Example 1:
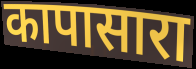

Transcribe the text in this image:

कापासारा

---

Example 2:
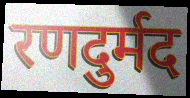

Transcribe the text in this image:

रणदुर्मद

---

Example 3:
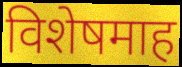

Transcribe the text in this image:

विशेषमाह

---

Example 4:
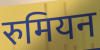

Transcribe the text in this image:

रुमियन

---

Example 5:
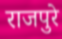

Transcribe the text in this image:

राजपुरे